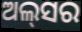
ଅଲ୍‌ସର